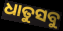
ଧାତୁସବୁ